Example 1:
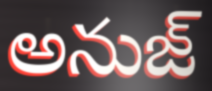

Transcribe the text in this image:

అనుజ్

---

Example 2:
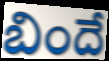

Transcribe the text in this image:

బిందే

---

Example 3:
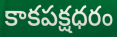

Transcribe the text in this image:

కాకపక్షధరం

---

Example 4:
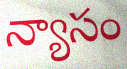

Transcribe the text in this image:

న్యాసం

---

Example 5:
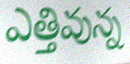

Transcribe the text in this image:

ఎత్తివున్న